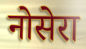
नोसेरा